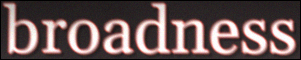
broadness